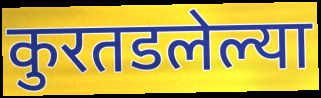
कुरतडलेल्या